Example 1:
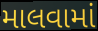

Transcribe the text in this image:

માલવામાં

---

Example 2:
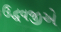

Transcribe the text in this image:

ઉદ્ધવજીએ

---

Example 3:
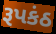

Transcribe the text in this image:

રૂપકંઠ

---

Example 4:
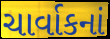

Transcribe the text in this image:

ચાર્વાકનાં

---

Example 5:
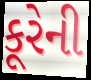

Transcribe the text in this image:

કૂરેની